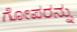
ಗೋಪರನ್ನು